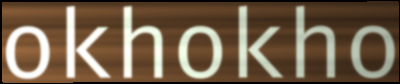
okhokho